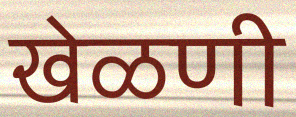
खेळणी